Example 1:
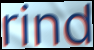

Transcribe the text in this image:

rind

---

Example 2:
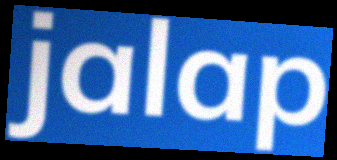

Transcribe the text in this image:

jalap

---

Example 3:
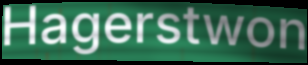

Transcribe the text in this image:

Hagerstwon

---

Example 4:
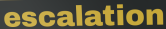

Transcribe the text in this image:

escalation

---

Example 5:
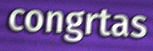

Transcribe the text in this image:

congrtas